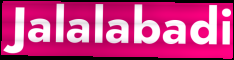
Jalalabadi